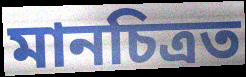
মানচিত্ৰত